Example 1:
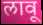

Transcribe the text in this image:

लावू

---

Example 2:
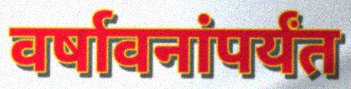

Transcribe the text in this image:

वर्षावनांपर्यंत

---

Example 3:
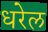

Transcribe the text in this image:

धरेल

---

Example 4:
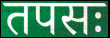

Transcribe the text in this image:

तपसः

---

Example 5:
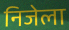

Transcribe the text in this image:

निजेला